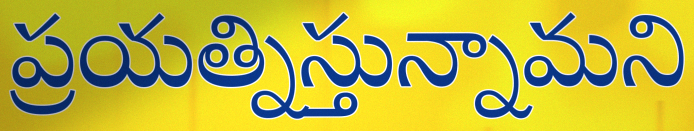
ప్రయత్నిస్తున్నామని